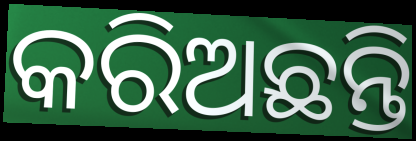
କରିଅଛନ୍ତି